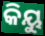
କିୟୁ